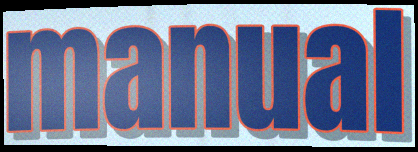
manual